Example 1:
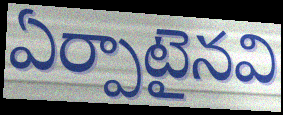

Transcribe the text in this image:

ఏర్పాటైనవి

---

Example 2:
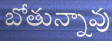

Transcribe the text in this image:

బోతున్నావు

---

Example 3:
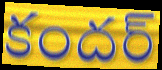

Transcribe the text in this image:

కందర్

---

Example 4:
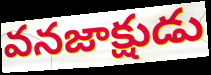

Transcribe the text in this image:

వనజాక్షుడు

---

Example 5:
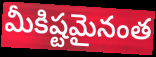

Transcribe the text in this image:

మీకిష్టమైనంత